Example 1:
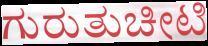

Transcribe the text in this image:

ಗುರುತುಚೀಟಿ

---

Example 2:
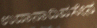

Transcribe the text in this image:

ಉದಾನಾದಿವಸೇನ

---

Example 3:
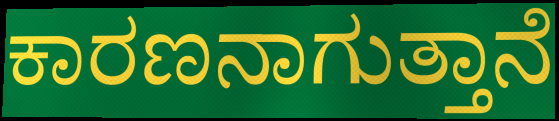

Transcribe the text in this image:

ಕಾರಣನಾಗುತ್ತಾನೆ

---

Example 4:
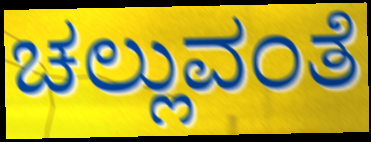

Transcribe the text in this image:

ಚಲ್ಲುವಂತೆ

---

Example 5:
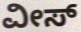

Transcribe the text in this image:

ವೀಸ್